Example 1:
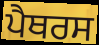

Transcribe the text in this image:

ਪੈਥਰਸ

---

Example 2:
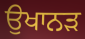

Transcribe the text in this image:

ਉਖਾਨੜ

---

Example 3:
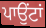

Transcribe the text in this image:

ਪਾਉਂਟਾਂ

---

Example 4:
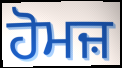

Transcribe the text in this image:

ਹੋਮਜ਼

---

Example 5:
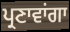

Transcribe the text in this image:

ਪ੍ਰਣਾਵਾਂਗਾ